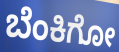
ಬೆಂಕಿಗೋ